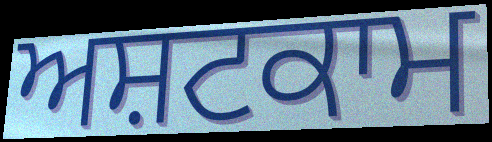
ਅਸ਼ਟਕਾਮ